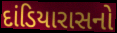
દાંડિયારાસનો